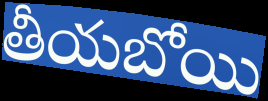
తీయబోయి